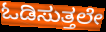
ಓಡಿಸುತ್ತಲೇ